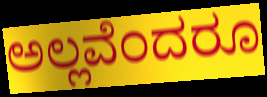
ಅಲ್ಲವೆಂದರೂ